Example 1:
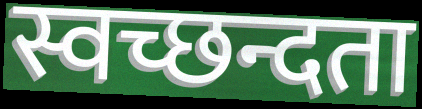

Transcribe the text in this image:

स्वच्छन्दता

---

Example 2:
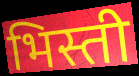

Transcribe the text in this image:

भिस्ती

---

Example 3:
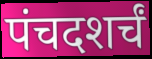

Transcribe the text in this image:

पंचदशर्चं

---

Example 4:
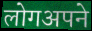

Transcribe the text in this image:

लोगअपने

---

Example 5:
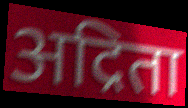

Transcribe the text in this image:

अद्रिता